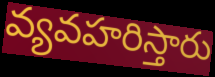
వ్యవహరిస్తారు